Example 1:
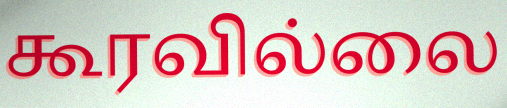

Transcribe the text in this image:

கூரவில்லை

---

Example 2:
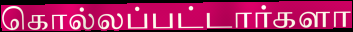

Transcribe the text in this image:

கொல்லப்பட்டார்களா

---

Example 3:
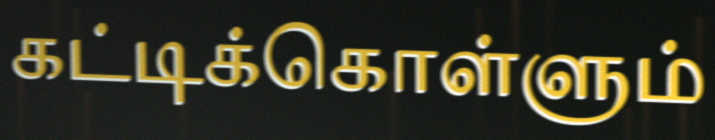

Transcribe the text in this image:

கட்டிக்கொள்ளும்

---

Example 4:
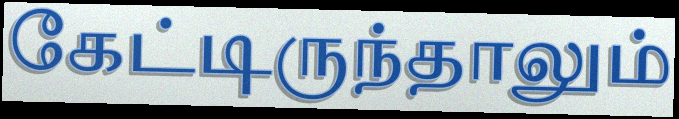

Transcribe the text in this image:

கேட்டிருந்தாலும்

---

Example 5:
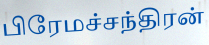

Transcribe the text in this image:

பிரேமச்சந்திரன்